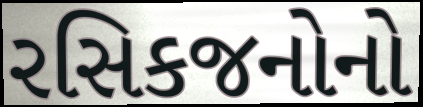
રસિકજનોનો